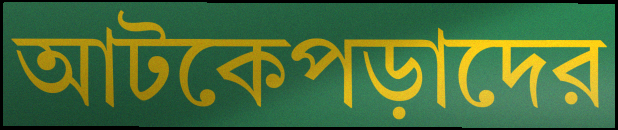
আটকেপড়াদের